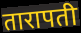
तारापती